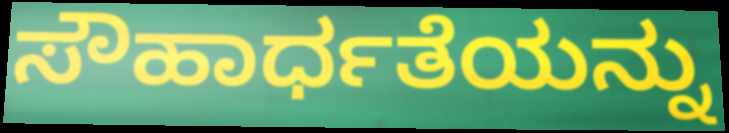
ಸೌಹಾರ್ಧತೆಯನ್ನು